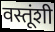
वस्तूंशी